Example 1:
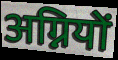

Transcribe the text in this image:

अग्नियों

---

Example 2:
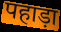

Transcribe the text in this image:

पहाड़ा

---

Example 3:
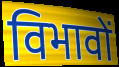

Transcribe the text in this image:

विभावों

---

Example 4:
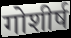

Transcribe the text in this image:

गोशीर्ष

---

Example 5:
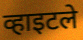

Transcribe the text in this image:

व्हाइटले